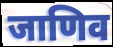
जाणिव